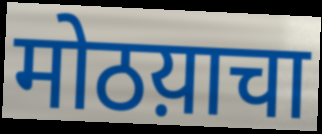
मोठय़ाचा